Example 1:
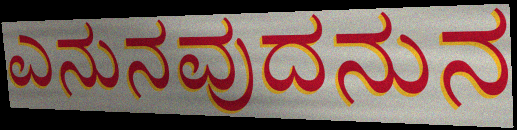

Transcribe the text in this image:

ಎನುನವುದನುನ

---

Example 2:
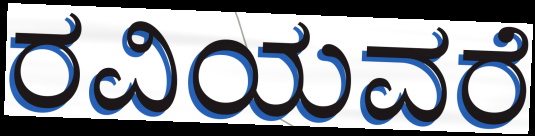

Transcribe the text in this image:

ರವಿಯವರೆ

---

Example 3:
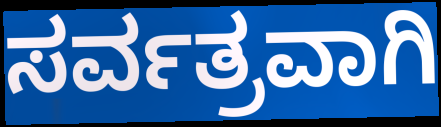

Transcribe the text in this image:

ಸರ್ವತ್ರವಾಗಿ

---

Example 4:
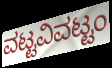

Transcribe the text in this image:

ವಟ್ಟವಿವಟ್ಟಂ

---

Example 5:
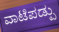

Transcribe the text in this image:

ವಾಟೆಪಡ್ಪು